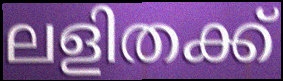
ലളിതക്ക്